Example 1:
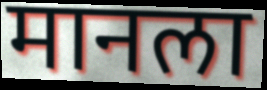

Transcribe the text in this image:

मानला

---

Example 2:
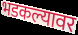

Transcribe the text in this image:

भडकल्यावर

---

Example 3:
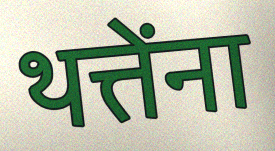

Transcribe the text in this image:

थत्तेंना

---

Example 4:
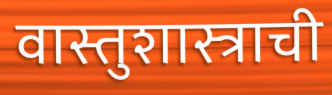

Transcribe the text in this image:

वास्तुशास्त्राची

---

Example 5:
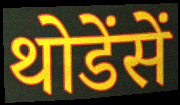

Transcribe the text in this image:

थोडेंसें